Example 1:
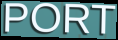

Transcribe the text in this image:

PORT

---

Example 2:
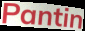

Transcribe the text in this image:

Pantin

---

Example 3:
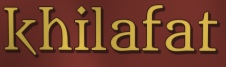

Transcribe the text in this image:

khilafat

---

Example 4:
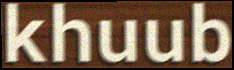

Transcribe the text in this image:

khuub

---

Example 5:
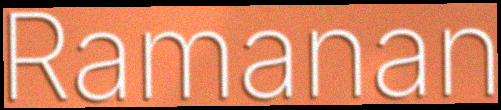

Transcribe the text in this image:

Ramanan